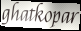
ghatkopar